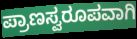
ಪ್ರಾಣಸ್ವರೂಪವಾಗಿ